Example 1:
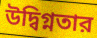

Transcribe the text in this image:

উদ্বিগ্নতার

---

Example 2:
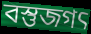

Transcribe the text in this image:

বস্তুজগৎ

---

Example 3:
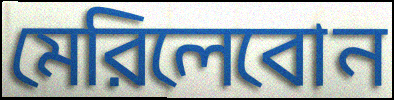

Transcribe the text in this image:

মেরিলেবোন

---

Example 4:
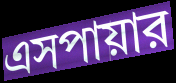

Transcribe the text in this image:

এসপায়ার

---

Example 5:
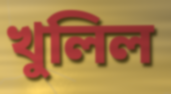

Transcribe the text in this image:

খুলিল